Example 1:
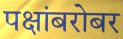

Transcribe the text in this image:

पक्षांबरोबर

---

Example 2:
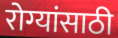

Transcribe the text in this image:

रोग्यांसाठी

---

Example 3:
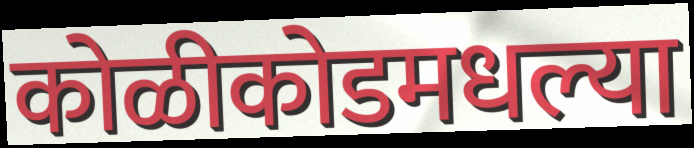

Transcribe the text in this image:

कोळीकोडमधल्या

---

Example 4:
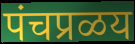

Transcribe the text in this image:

पंचप्रळय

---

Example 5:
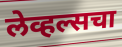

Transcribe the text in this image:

लेव्हल्सचा